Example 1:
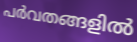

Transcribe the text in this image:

പർവതങ്ങളിൽ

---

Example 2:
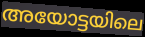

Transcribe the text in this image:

അയോട്ടയിലെ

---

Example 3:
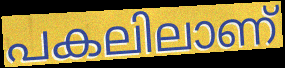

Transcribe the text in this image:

പകലിലാണ്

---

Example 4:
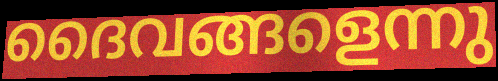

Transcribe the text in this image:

ദൈവങ്ങളെന്നു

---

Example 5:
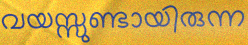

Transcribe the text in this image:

വയസ്സുണ്ടായിരുന്ന